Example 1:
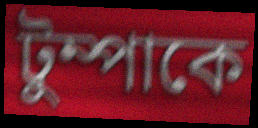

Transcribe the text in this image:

টুম্পাকে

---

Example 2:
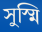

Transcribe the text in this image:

সুস্মি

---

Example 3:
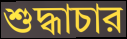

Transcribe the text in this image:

শুদ্ধাচার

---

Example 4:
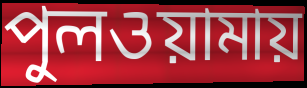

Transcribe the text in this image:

পুলওয়ামায়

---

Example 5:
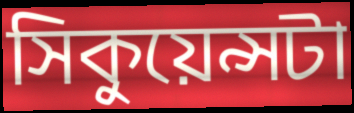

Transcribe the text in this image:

সিকুয়েন্সটা